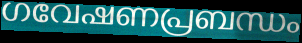
ഗവേഷണപ്രബന്ധം